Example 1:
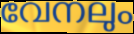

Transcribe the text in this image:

വേനലും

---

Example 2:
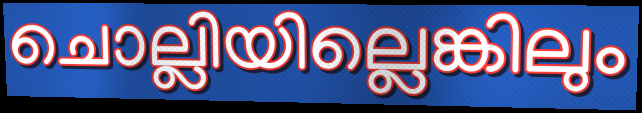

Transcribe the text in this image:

ചൊല്ലിയില്ലെങ്കിലും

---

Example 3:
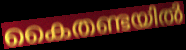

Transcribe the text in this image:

കൈതണ്ടയിൽ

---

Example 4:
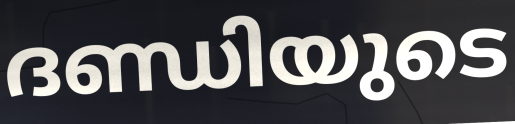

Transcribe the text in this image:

ദണ്ഡിയുടെ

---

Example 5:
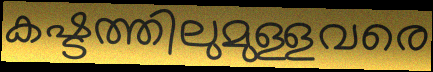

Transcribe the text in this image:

കഷ്ടത്തിലുമുള്ളവരെ